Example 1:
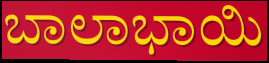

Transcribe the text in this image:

ಬಾಲಾಭಾಯಿ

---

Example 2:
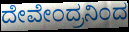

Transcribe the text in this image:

ದೇವೇಂದ್ರನಿಂದ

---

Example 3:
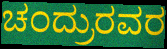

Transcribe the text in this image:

ಚಂದ್ರುರವರ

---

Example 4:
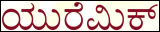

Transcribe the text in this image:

ಯುರೆಮಿಕ್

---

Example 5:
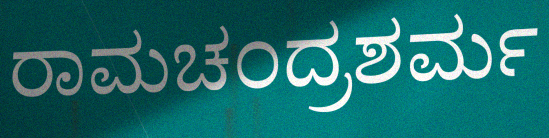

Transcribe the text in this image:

ರಾಮಚಂದ್ರಶರ್ಮ